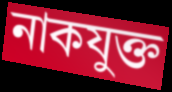
নাকযুক্ত